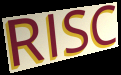
RISC